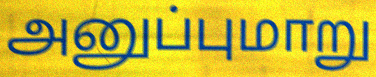
அனுப்புமாறு